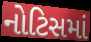
નોટિસમાં